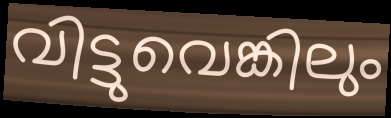
വിട്ടുവെങ്കിലും